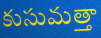
కుసుమత్తా